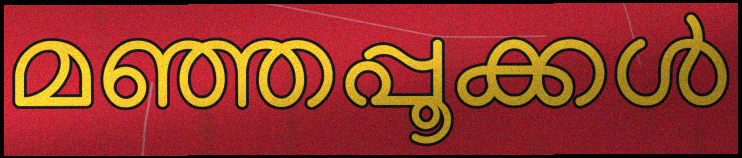
മഞ്ഞപ്പൂക്കൾ